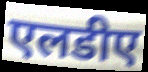
एलडीए